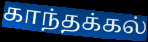
காந்தக்கல்